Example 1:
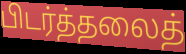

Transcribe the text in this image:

பிடர்த்தலைத்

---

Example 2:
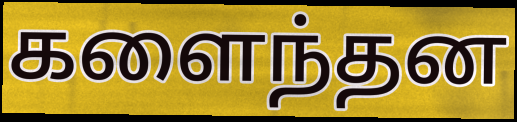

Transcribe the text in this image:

களைந்தன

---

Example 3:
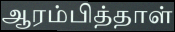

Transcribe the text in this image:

ஆரம்பித்தாள்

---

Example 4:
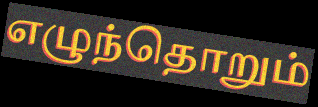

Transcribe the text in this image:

எழுந்தொறும்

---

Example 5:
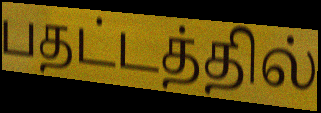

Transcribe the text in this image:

பதட்டத்தில்